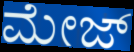
ಮೇಜ್